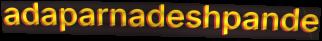
adaparnadeshpande